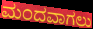
ಮಂದವಾಗಲು